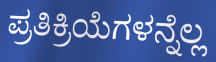
ಪ್ರತಿಕ್ರಿಯೆಗಳನ್ನೆಲ್ಲ